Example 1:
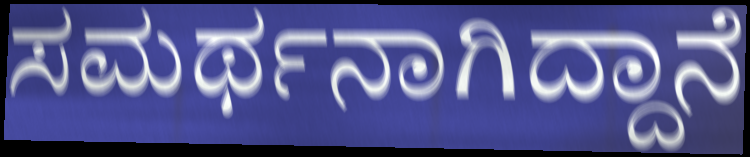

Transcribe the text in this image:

ಸಮರ್ಥನಾಗಿದ್ದಾನೆ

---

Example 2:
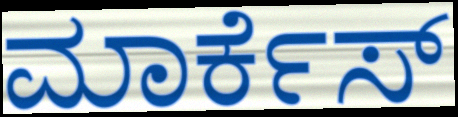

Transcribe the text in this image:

ಮಾರ್ಕೆಸ್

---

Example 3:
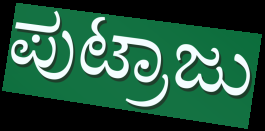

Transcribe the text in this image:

ಪುಟ್ರಾಜು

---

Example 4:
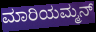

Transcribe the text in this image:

ಮಾರಿಯಮ್ಮನ್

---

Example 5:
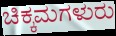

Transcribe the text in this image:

ಚಿಕ್ಕಮಗಳುರು